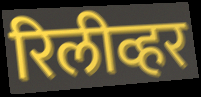
रिलीव्हर